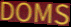
DOMS